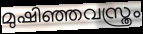
മുഷിഞ്ഞവസ്ത്രം